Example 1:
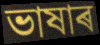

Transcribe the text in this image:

ভাষাৰ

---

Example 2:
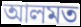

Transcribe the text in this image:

আলমত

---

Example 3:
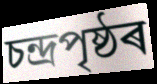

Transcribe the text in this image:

চন্দ্ৰপৃষ্ঠৰ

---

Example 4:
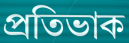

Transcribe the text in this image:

প্ৰতিভাক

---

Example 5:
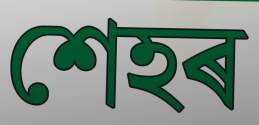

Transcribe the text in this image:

শেহৰ